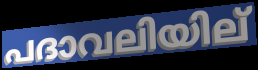
പദാവലിയില്